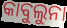
କାବୁଲୁନା